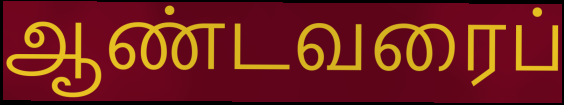
ஆண்டவரைப்